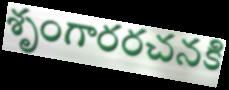
శృంగారరచనకి